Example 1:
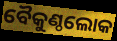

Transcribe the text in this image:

ବୈକୁଣ୍ଠଲୋକ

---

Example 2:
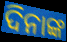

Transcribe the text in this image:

ଦିନାଙ୍କ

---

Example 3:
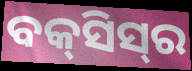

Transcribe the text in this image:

ବକ୍‌ସିସ୍‌ର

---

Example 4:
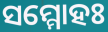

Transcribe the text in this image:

ସମ୍ମୋହଃ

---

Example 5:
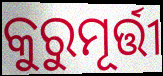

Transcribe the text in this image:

କୁରୁମୂର୍ତ୍ତୀ